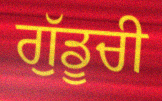
ਗੁੱਡੂਚੀ